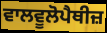
ਵਾਲਵੂਲੋਪੈਥੀਜ਼